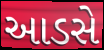
આડસે